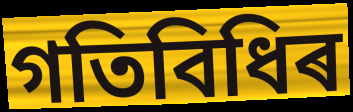
গতিবিধিৰ